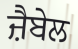
ਜ਼ੈਬੇਲ